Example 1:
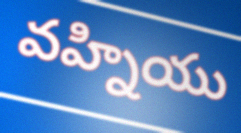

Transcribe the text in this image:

వహ్నియు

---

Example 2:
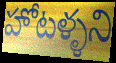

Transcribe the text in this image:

హోటళ్ళని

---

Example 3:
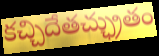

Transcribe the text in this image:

కచ్చిదేతచ్ఛ్రుతం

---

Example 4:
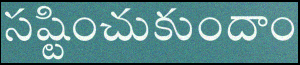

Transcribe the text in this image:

సష్టించుకుందాం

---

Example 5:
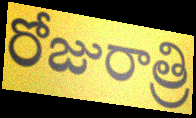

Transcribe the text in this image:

రోజురాత్రి